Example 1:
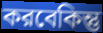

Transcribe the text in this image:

করবেকিন্তু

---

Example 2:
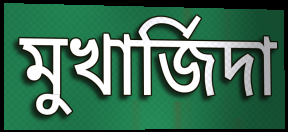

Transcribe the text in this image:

মুখার্জিদা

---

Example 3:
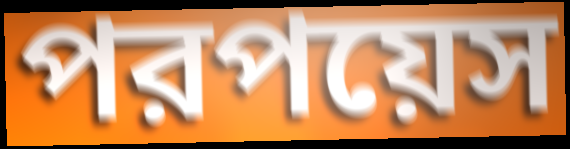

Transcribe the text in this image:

পরপয়েস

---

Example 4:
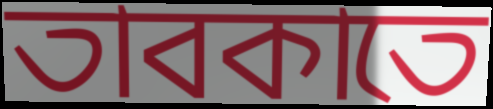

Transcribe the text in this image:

তাবকাতে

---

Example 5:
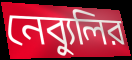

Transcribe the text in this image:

নেব্যুলির